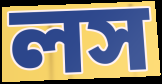
লস